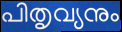
പിതൃവ്യനും